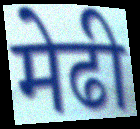
मेढी